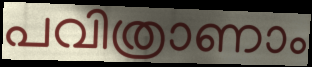
പവിത്രാണാം